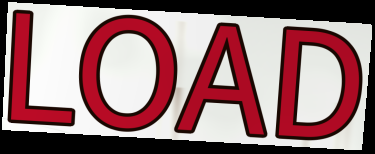
LOAD